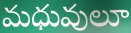
మధువులూ